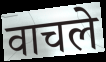
वाचले